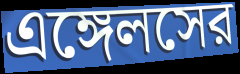
এঙ্গেলসের